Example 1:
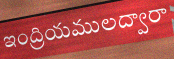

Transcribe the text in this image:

ఇంద్రియములద్వారా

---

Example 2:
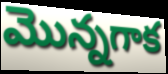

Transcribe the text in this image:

మొన్నగాక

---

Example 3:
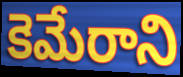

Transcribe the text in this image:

కెమేరాని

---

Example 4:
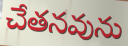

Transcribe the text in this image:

చేతనవును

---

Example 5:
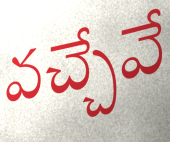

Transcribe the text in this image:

వచ్చేవే